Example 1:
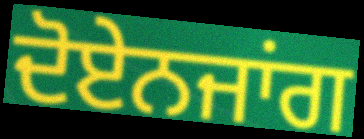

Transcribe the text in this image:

ਦੋਏਨਜਾਂਗ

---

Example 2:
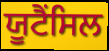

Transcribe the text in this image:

ਯੂਟੈਂਸਿਲ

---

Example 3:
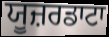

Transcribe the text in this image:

ਯੂਜ਼ਰਡਾਟਾ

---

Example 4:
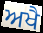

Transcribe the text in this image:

ਅਖੈ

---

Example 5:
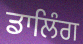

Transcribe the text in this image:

ਡਾਲਿੰਗ